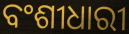
ବଂଶୀଧାରୀ